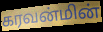
கரவன்மின்